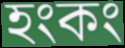
হংকং